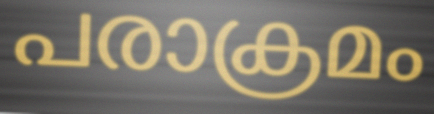
പരാക്രമം